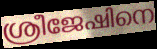
ശ്രീജേഷിനെ